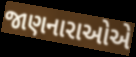
જાણનારાઓએ